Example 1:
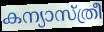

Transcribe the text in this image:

കന്യാസ്ത്രീ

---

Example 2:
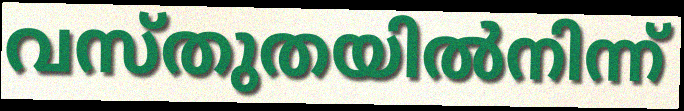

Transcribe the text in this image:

വസ്തുതയിൽനിന്ന്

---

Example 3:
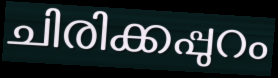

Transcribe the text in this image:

ചിരിക്കപ്പുറം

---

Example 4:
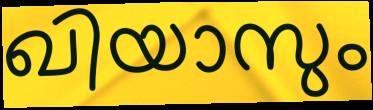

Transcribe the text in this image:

ഖിയാസും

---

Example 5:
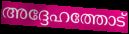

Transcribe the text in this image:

അദ്ദേഹത്തോട്